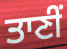
ਤਾਣੀਂ